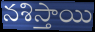
నశిస్తాయి